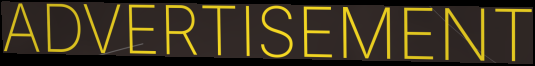
ADVERTISEMENT